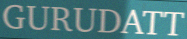
GURUDATT